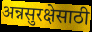
अन्नसुरक्षेसाठी